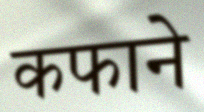
कफाने